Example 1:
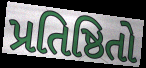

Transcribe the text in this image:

પ્રતિષ્ઠિતો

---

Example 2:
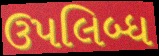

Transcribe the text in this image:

ઉપલિબ્ધ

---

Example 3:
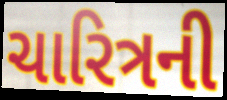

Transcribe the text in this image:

ચારિત્રની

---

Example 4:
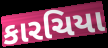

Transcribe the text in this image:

કારચિયા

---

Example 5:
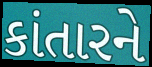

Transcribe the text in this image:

કાંતારને